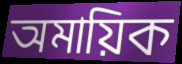
অমায়িক